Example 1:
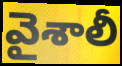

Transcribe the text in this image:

వైశాలీ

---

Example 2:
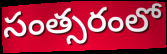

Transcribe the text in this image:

సంత్సరంలో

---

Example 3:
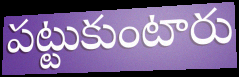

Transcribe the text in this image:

పట్టుకుంటారు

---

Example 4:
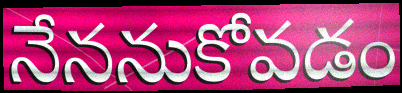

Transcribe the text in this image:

నేననుకోవడం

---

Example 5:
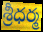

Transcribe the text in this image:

శ్రీధర్మ